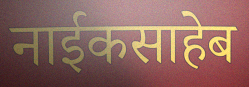
नाईकसाहेब